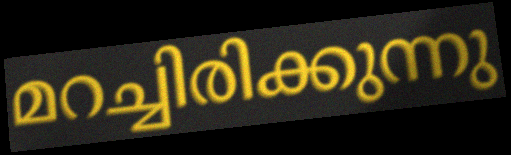
മറച്ചിരിക്കുന്നു